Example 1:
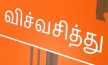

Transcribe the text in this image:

விச்வசித்து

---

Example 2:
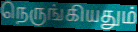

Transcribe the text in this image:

நெருங்கியதும்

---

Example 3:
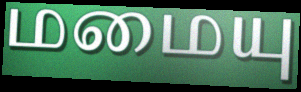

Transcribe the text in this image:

மமையு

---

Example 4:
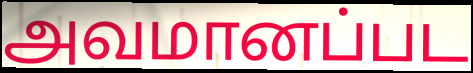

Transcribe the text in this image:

அவமானப்பட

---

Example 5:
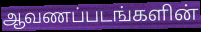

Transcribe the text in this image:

ஆவணப்படங்களின்